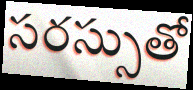
సరస్సుతో